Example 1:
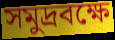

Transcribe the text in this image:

সমুদ্রবক্ষে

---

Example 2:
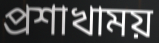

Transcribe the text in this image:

প্রশাখাময়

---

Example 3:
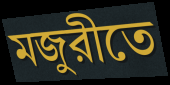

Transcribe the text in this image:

মজুরীতে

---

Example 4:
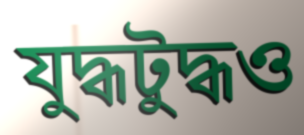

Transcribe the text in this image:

যুদ্ধটুদ্ধও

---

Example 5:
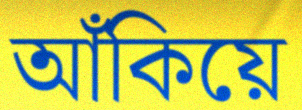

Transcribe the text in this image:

আঁকিয়ে